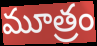
మూత్రం